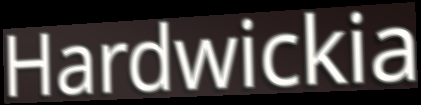
Hardwickia